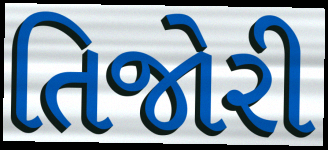
તિજોરી